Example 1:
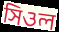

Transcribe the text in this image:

সিওল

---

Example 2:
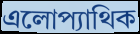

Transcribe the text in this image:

এলোপ্যাথিক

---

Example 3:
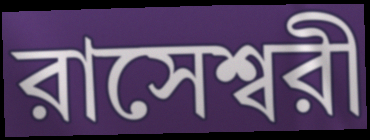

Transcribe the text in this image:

রাসেশ্বরী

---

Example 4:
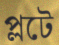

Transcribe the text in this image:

প্লটে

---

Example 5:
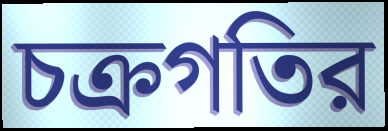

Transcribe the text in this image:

চক্রগতির